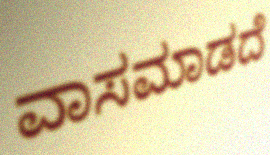
ವಾಸಮಾಡದೆ